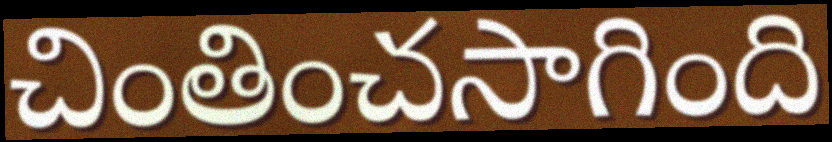
చింతించసాగింది